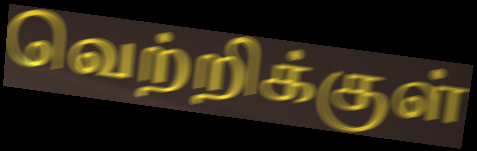
வெற்றிக்குள்